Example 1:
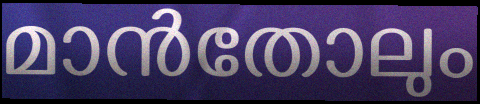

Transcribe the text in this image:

മാൻതോലും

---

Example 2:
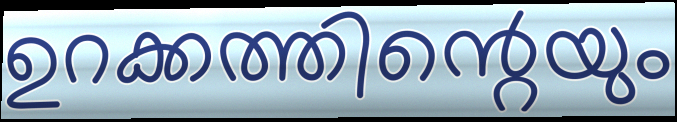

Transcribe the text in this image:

ഉറക്കത്തിന്റെയും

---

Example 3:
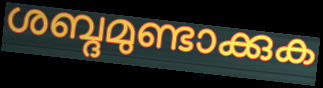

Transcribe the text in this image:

ശബ്ദമുണ്ടാക്കുക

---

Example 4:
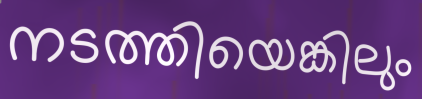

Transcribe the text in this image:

നടത്തിയെങ്കിലും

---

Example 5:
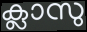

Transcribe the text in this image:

ക്ലാസു